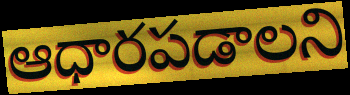
ఆధారపడాలని